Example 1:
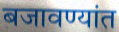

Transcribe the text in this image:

बजावण्यांत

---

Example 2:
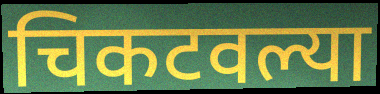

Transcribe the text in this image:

चिकटवल्या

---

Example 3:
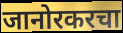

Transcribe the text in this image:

जानोरकरचा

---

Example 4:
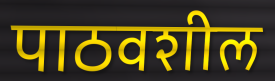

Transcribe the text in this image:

पाठवशील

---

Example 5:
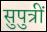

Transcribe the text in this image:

सुपुत्रीं